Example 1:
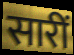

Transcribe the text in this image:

सारीं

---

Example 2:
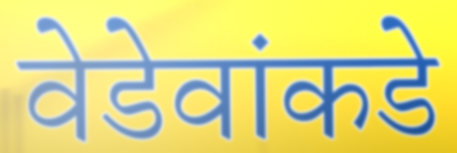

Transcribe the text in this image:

वेडेवांकडे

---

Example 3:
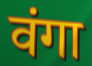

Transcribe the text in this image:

वंगा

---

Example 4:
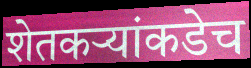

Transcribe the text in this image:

शेतकऱ्यांकडेच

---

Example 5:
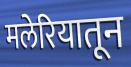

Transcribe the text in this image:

मलेरियातून